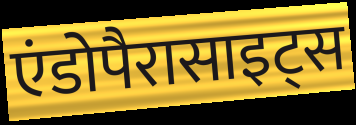
एंडोपैरासाइट्स